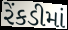
રેંકડીમાં